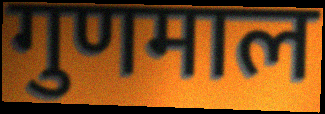
गुणमाल